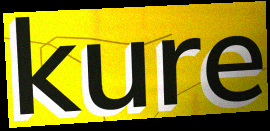
kure